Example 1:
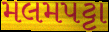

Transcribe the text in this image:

મલમપટ્ટા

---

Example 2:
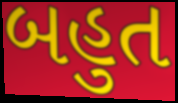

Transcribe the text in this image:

બહુત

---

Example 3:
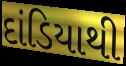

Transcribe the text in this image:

દાંડિયાથી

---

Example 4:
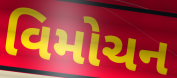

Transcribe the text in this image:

વિમોચન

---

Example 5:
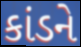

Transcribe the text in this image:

કાંડને